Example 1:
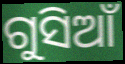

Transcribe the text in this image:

ଗୁସିଆଁ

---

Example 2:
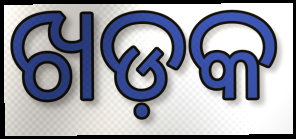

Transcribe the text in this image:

ଖଡ଼କ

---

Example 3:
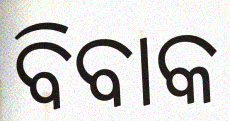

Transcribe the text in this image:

ବିବାକ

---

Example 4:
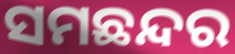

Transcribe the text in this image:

ସମଛନ୍ଦର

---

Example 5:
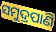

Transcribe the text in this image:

ସମୁଦ୍ରପାଣି